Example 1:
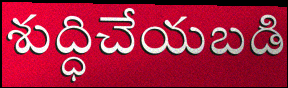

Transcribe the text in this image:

శుద్ధిచేయబడి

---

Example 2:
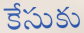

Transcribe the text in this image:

కేసుకు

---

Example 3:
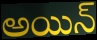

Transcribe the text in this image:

అయిన్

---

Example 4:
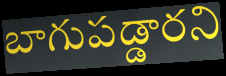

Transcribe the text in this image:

బాగుపడ్డారని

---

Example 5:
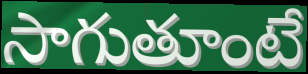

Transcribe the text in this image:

సాగుతూంటే